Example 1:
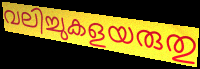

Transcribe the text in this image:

വലിച്ചുകളയരുതു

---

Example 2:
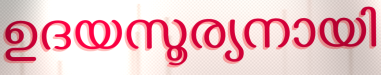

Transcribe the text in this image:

ഉദയസൂര്യനായി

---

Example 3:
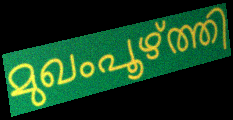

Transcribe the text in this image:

മുഖംപൂഴ്ത്തി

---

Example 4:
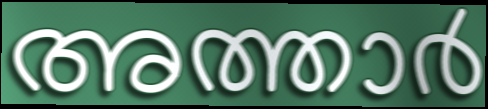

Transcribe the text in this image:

അത്താർ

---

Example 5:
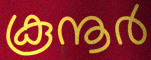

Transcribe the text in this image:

കൂനൂർ